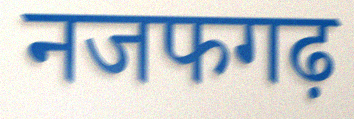
नजफगढ़